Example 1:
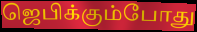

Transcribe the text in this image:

ஜெபிக்கும்போது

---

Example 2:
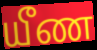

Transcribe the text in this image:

யீண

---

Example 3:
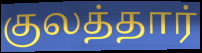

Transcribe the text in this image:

குலத்தார்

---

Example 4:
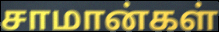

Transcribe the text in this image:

சாமான்கள்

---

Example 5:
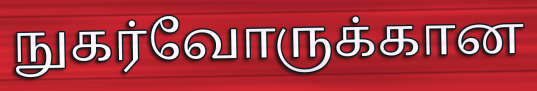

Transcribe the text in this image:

நுகர்வோருக்கான